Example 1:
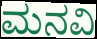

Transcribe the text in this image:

ಮನವಿ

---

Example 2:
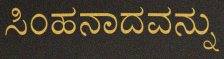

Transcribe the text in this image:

ಸಿಂಹನಾದವನ್ನು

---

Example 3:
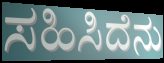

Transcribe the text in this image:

ಸಹಿಸಿದೆನು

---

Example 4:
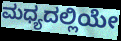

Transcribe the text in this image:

ಮಧ್ಯದಲ್ಲಿಯೇ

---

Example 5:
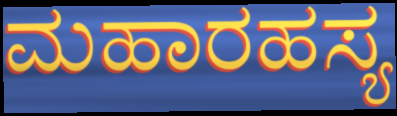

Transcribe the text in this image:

ಮಹಾರಹಸ್ಯ